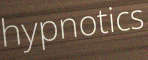
hypnotics